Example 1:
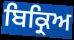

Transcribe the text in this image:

ਬਿਕ੍ਰਿਅ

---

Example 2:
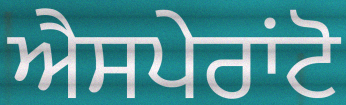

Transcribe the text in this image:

ਐਸਪੇਰਾਂਟੋ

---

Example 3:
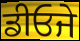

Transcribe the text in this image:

ਡੀਓਜੇ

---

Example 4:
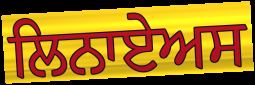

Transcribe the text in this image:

ਲਿਨਾਏਅਸ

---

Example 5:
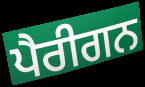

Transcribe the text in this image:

ਪੈਰੀਗਨ